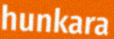
hunkara